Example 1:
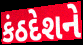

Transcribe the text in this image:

કંઠદેશને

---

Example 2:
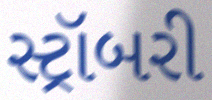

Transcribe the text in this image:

સ્ટ્રૉબરી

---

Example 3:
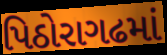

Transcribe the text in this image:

પિઠોરાગઢમાં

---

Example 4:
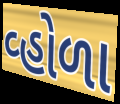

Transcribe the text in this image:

વ્હોળા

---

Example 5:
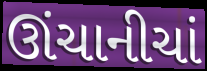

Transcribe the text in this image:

ઊંચાનીચાં